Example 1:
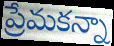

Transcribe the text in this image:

ప్రేమకన్నా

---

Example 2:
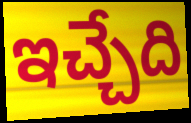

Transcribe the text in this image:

ఇచ్చేది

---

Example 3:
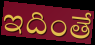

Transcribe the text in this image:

ఇదింతే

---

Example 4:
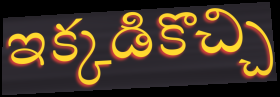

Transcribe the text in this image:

ఇక్కడికొచ్చి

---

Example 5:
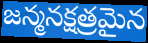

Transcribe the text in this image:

జన్మనక్షత్రమైన